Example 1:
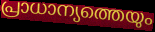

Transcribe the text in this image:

പ്രാധാന്യത്തെയും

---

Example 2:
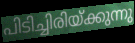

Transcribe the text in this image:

പിടിച്ചിരിയ്ക്കുന്നു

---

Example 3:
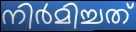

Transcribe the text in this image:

നിർമിച്ചത്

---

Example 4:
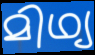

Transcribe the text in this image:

മിഥ്യ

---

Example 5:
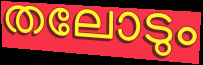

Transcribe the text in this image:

തലോടും